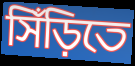
সিঁড়িতে